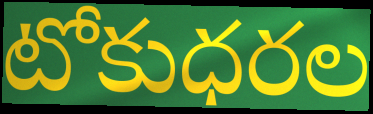
టోకుధరల